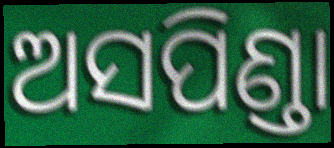
ଅସପିଣ୍ଡା